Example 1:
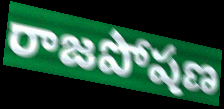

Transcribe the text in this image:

రాజపోషణ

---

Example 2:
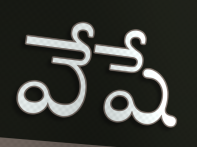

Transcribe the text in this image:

వేషే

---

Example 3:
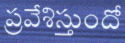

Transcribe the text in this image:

ప్రవేశిస్తుందో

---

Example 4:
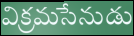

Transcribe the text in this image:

విక్రమసేనుడు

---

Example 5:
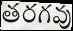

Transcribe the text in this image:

తరగవు